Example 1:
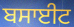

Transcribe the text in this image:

ਬਸਾਈਟ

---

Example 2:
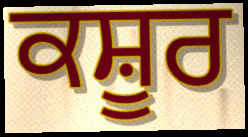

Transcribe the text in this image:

ਕਸ਼ੂਰ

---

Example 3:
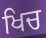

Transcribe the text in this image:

ਖਿਚ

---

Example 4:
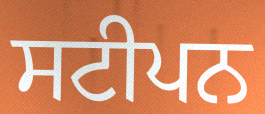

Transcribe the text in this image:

ਸਟੀਪਨ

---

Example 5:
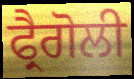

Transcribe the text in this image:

ਫ੍ਰੈਗੋਲੀ